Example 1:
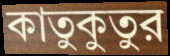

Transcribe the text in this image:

কাতুকুতুর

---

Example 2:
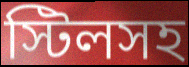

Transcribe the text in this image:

স্টিলসহ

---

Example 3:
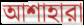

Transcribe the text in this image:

আশাহারা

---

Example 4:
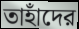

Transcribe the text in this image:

তাহাঁদের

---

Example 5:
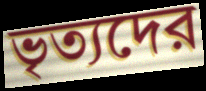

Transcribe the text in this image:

ভৃত্যদের